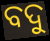
ବଦୁ